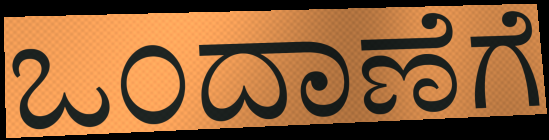
ಒಂದಾಣೆಗೆ